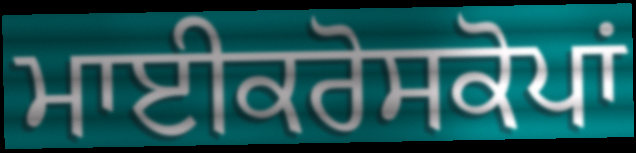
ਮਾਈਕਰੋਸਕੋਪਾਂ